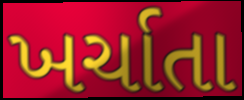
ખર્ચાતા